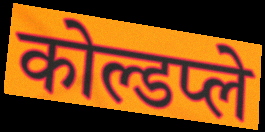
कोल्डप्ले